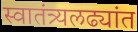
स्वातंत्र्यलढ्यांत